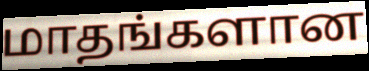
மாதங்களான